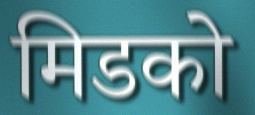
मिडको